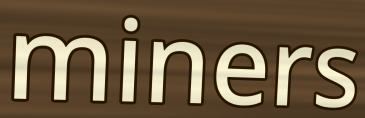
miners